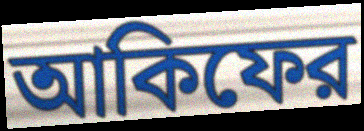
আকিফের